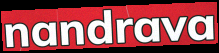
nandrava